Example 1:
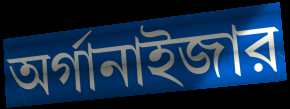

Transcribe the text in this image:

অর্গানাইজার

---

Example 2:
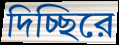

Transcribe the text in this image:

দিচ্ছিরে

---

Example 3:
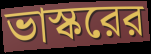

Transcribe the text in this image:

ভাস্করের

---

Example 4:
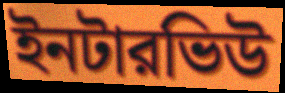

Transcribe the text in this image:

ইনটারভিউ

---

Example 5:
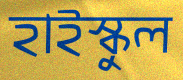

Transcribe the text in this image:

হাইস্কুল